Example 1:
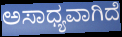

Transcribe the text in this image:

ಅಸಾಧ್ಯವಾಗಿದೆ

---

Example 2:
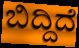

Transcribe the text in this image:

ಬಿದ್ದಿದೆ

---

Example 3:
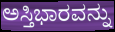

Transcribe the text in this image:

ಅಸ್ತಿಭಾರವನ್ನು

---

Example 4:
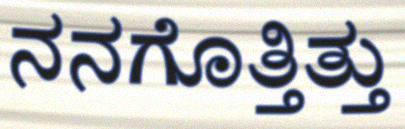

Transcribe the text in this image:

ನನಗೊತ್ತಿತ್ತು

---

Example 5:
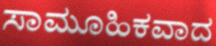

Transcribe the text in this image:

ಸಾಮೂಹಿಕವಾದ